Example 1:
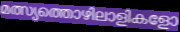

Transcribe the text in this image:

മത്സ്യത്തൊഴിലാളികളോ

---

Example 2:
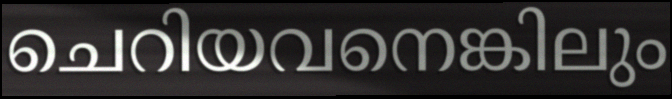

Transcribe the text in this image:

ചെറിയവനെങ്കിലും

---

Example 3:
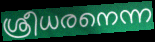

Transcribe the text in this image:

ശ്രീധരനെന്ന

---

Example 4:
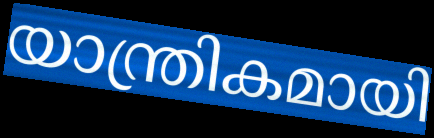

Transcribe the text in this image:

യാന്ത്രികമായി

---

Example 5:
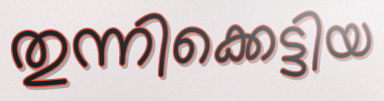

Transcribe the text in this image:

തുന്നിക്കെട്ടിയ